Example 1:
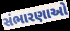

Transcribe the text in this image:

સંભારણાઓ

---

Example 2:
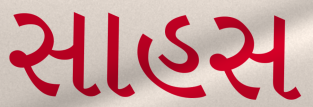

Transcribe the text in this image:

સાહસ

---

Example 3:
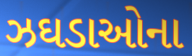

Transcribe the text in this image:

ઝઘડાઓના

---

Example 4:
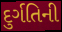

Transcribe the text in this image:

દુર્ગતિની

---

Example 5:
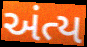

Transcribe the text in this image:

અંત્ય